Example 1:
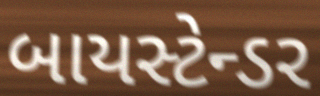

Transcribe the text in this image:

બાયસ્ટેન્ડર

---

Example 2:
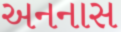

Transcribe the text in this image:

અનનાસ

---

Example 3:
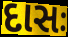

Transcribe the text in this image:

દાસઃ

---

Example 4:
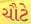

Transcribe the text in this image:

ચૌટે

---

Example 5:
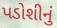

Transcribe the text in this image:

પડોશીનું